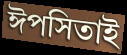
ঈপসিতাই